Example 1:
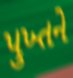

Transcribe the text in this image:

પુખ્તને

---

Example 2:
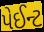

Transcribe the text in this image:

પેઈન્ટ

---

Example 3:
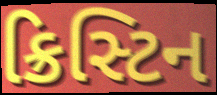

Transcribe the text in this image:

ક્રિસ્ટિન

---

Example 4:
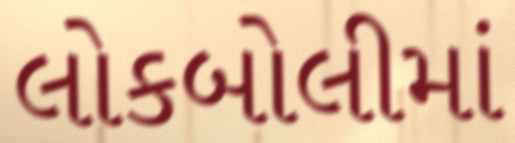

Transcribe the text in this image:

લોકબોલીમાં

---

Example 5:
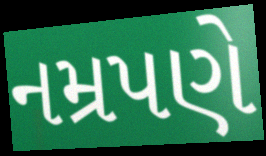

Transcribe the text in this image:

નમ્રપણે